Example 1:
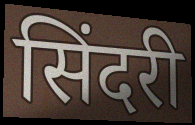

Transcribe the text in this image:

सिंदरी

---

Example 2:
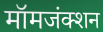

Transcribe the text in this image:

मॉमजंक्शन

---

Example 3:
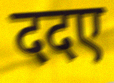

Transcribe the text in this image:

ददए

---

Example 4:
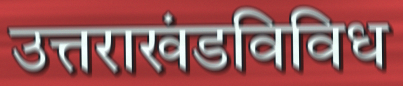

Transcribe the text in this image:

उत्तराखंडविविध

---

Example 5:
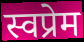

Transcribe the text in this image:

स्वप्रेम